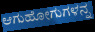
ಆಗುಹೋಗುಗಳನ್ನ